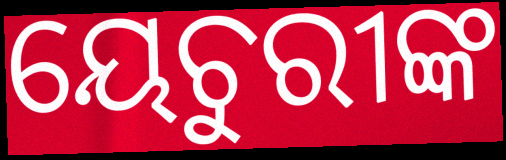
ୟେଚୁରୀଙ୍କ